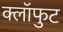
क्लॉफुट